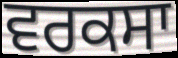
ਵਰਕਸਾ